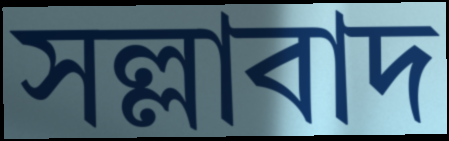
সল্লাবাদ